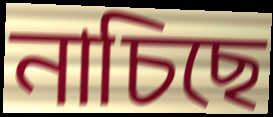
নাচিছে